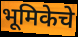
भूमिकेचे